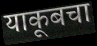
याकूबचा